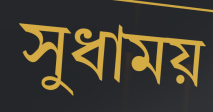
সুধাময়